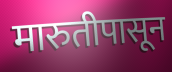
मारुतीपासून